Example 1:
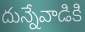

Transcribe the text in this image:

దున్నేవాడికి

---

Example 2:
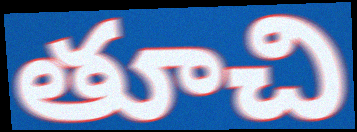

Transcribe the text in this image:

తూచి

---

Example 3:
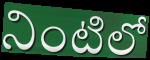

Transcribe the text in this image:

నింటిలో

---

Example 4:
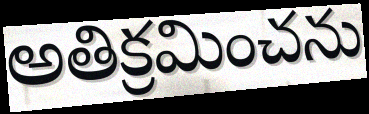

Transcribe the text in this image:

అతిక్రమించను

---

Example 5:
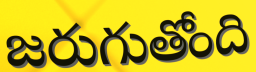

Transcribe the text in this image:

జరుగుతోంది